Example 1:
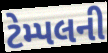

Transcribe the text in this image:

ટેમ્પલની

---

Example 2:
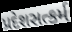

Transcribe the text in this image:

પ્રદેશસત્કર્મ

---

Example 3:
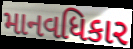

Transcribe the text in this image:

માનવધિકાર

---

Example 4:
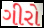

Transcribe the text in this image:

ગીરો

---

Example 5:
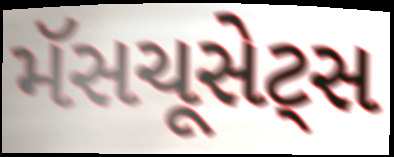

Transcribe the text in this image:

મૅસચૂસેટ્સ